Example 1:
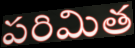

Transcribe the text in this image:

పరిమిత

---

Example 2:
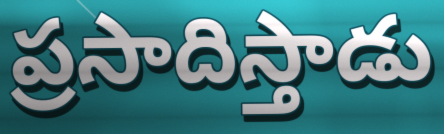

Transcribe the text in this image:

ప్రసాదిస్తాడు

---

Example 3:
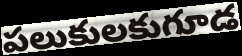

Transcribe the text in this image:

పలుకులకుగూడ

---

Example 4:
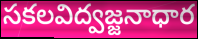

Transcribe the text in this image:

సకలవిద్వజ్జనాధార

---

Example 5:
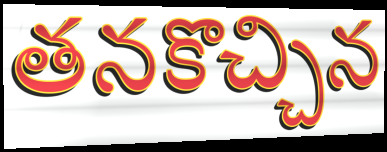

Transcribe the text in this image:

తనకొచ్చిన